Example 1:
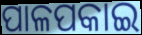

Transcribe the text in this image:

ପାଳପକାଇ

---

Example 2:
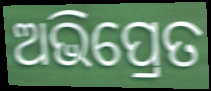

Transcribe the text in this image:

ଅଭିପ୍ରେତ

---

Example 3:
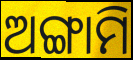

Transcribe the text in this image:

ଅଙ୍ଗାମି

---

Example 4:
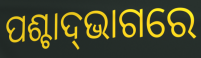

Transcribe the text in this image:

ପଶ୍ଚାଦ୍‌ଭାଗରେ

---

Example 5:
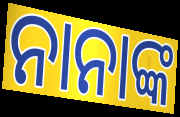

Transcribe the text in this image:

ନାନାଙ୍କ